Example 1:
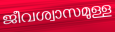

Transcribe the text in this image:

ജീവശ്വാസമുള്ള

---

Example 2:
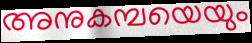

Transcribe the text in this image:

അനുകമ്പയെയും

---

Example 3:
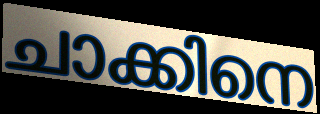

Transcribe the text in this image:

ചാക്കിനെ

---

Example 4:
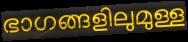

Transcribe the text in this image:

ഭാഗങ്ങളിലുമുള്ള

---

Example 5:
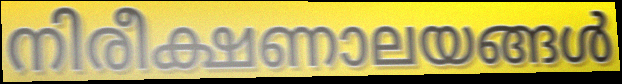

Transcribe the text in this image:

നിരീക്ഷണാലയങ്ങൾ